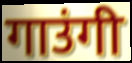
गाउंगी